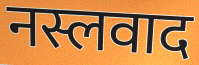
नस्लवाद